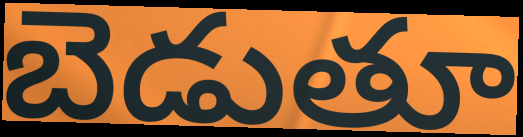
బెడుతూ